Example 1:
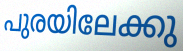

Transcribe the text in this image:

പുരയിലേക്കു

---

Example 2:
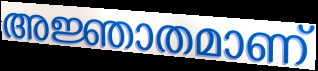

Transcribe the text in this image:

അജ്ഞാതമാണ്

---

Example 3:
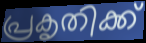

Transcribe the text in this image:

പ്രകൃതിക്ക്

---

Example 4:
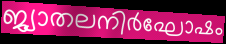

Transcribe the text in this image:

ജ്യാതലനിർഘോഷം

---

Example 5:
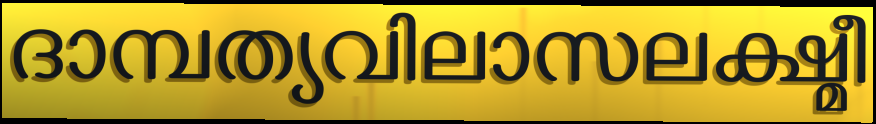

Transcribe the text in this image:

ദാമ്പത്യവിലാസലക്ഷ്മീ